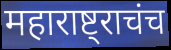
महाराष्ट्राचंच